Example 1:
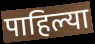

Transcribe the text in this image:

पाहिल्या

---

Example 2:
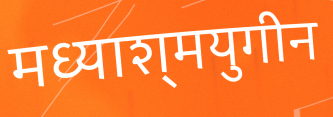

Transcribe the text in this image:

मध्याश्मयुगीन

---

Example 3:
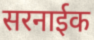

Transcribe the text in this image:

सरनाईक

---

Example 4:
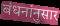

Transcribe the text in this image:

बंधनांनुसार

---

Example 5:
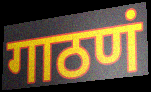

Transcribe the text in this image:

गाठणं